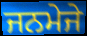
ਜਨਮੇਜੇ